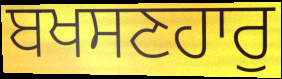
ਬਖਸਣਹਾਰੁ